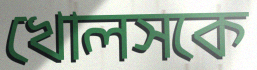
খোলসকে